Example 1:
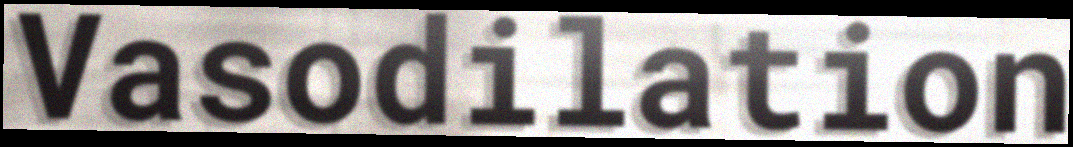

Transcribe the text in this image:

Vasodilation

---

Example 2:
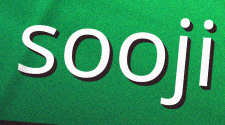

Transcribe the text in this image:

sooji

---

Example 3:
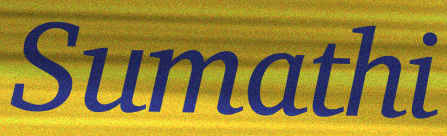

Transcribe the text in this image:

Sumathi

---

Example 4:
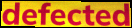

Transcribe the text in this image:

defected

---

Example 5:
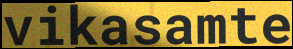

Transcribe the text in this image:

vikasamte